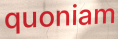
quoniam